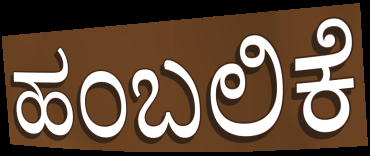
ಹಂಬಲಿಕೆ